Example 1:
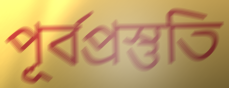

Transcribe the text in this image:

পূর্বপ্রস্তুতি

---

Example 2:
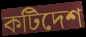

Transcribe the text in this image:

কটিদেশ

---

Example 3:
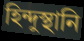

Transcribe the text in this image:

হিন্দুস্থানি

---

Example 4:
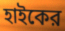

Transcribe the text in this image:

হাইকের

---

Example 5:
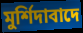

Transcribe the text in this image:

মুর্শিদাবাদে